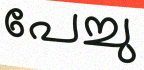
പേച്ചു